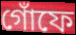
গোঁফে